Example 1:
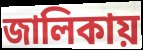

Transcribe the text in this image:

জালিকায়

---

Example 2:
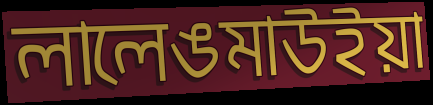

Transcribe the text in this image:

লালেঙমাউইয়া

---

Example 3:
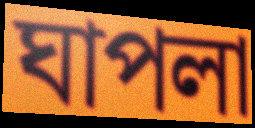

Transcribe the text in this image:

ঘাপলা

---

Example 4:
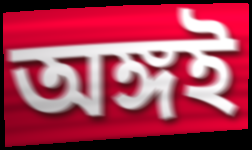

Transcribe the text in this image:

অঙ্গই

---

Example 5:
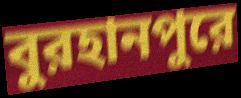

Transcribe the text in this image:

বুরহানপুরে